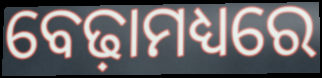
ବେଢ଼ାମଧ୍ୟରେ